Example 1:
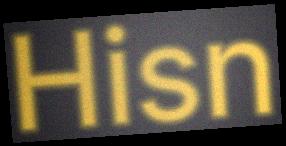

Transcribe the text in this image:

Hisn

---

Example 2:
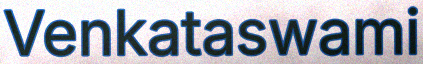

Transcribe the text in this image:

Venkataswami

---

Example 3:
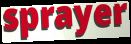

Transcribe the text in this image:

sprayer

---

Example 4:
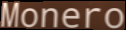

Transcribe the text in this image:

Monero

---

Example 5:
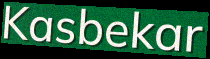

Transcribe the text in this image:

Kasbekar